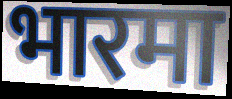
भारमा